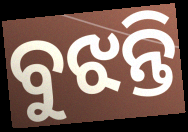
ବୁଝନ୍ତି